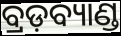
ବ୍ରଡ଼ବ୍ୟାଣ୍ଡ